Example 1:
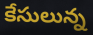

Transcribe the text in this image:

కేసులున్న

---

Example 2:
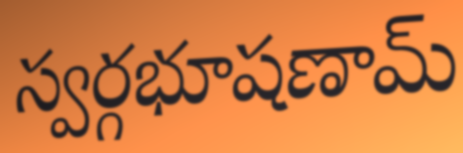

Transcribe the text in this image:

స్వర్గభూషణామ్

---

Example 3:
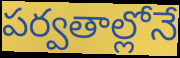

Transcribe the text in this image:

పర్వతాల్లోనే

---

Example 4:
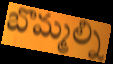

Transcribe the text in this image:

బొమ్మల్ని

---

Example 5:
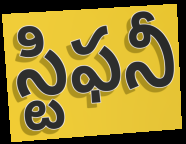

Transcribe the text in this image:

స్టిఫనీ